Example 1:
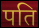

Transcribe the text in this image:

पति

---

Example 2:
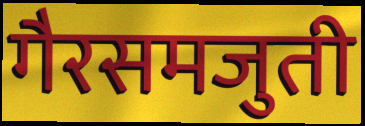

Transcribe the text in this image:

गैरसमजुती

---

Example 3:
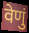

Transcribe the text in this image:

वेणुं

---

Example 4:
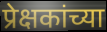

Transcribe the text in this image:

प्रेक्षकांच्या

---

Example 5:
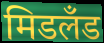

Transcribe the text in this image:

मिडलँड